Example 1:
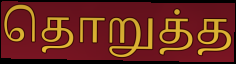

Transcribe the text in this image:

தொறுத்த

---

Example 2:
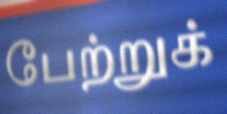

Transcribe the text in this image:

பேற்றுக்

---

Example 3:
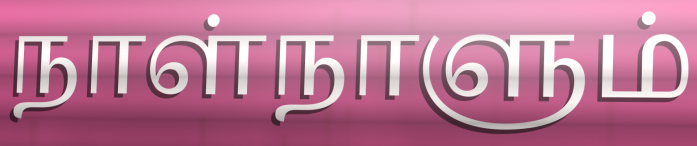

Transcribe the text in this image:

நாள்நாளும்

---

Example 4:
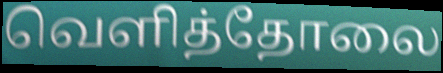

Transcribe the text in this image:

வெளித்தோலை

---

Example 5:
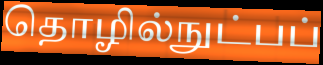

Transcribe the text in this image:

தொழில்நுட்பப்